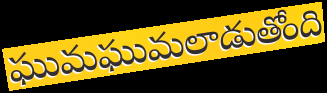
ఘుమఘుమలాడుతోంది